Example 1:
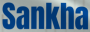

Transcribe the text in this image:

Sankha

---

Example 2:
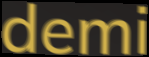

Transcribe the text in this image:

demi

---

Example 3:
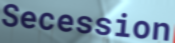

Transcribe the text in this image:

Secession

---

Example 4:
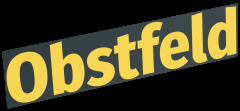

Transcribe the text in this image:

Obstfeld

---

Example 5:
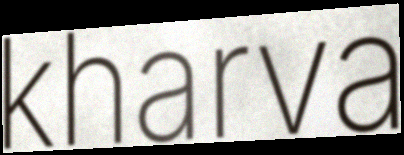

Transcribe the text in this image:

kharva